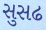
સુસઢ